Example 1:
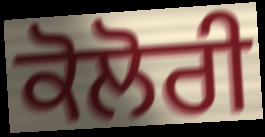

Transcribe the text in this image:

ਕੋਲੋਰੀ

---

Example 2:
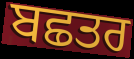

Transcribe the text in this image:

ਬਛਤਰ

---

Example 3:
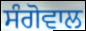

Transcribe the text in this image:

ਸੰਗੋਵਾਲ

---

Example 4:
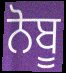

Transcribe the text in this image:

ਨੋਬੂ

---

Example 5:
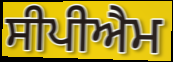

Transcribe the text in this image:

ਸੀਪੀਐਮ